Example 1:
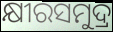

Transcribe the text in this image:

କ୍ଷୀରସମୁଦ୍ର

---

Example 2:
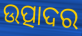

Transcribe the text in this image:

ଉତ୍ପାଦର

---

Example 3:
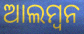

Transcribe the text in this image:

ଆଲମ୍ୱନ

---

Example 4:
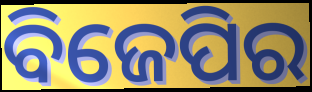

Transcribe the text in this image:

ବିଜେପିର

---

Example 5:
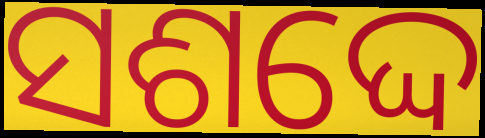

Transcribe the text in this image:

ସଶଦ୍ଦେ